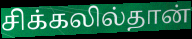
சிக்கலில்தான்